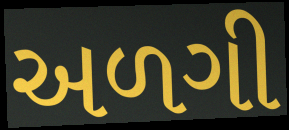
અળગી